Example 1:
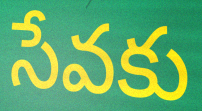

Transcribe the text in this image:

సేవకు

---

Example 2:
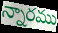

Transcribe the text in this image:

న్నారము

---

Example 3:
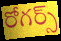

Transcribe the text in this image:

రోగర్స్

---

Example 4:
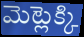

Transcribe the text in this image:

మెట్లెక్కి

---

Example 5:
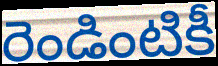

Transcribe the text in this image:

రెండింటికీ